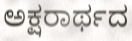
ಅಕ್ಷರಾರ್ಥದ